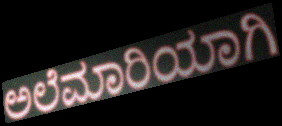
ಅಲೆಮಾರಿಯಾಗಿ